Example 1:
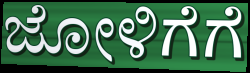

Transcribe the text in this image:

ಜೋಳಿಗೆಗೆ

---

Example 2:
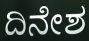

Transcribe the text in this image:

ದಿನೇಶ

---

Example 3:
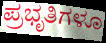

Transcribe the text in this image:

ಪ್ರಭೃತಿಗಳೂ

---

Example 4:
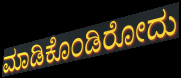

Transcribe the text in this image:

ಮಾಡಿಕೊಂಡಿರೋದು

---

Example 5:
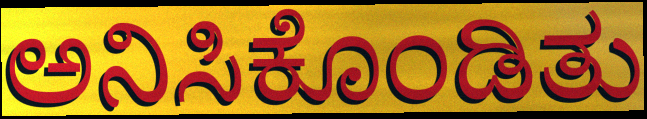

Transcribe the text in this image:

ಅನಿಸಿಕೊಂಡಿತು